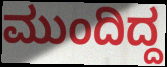
ಮುಂದಿದ್ದ